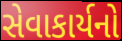
સેવાકાર્યનો